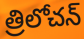
త్రిలోచన్